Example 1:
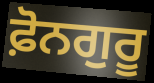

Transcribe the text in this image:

ਫ਼ੋਨਗੁਰੂ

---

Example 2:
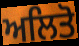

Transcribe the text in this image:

ਅਲਿਤੋ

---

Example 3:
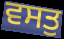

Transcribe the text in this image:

ਵਸਤੁ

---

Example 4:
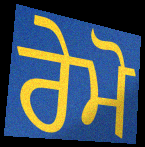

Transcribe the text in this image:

ਰੇਮੋ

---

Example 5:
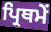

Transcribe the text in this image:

ਪ੍ਰਿਥਮੇਂ